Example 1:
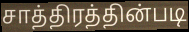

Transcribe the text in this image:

சாத்திரத்தின்படி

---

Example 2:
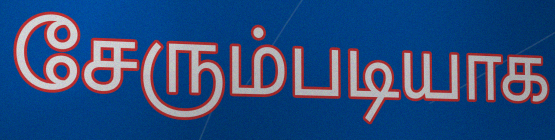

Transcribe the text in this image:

சேரும்படியாக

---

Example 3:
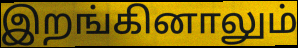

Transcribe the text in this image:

இறங்கினாலும்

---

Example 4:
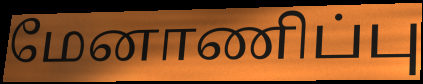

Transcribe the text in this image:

மேனாணிப்பு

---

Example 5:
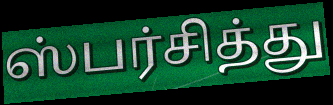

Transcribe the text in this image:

ஸ்பர்சித்து